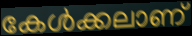
കേൾക്കലാണ്